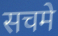
सचमे